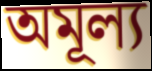
অমূল্য